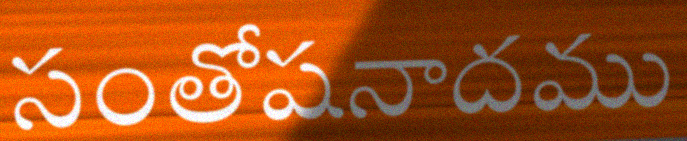
సంతోషనాదము